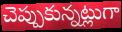
చెప్పుకున్నట్లుగా